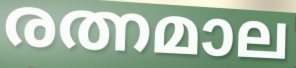
രത്നമാല